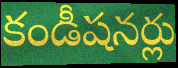
కండీషనర్లు